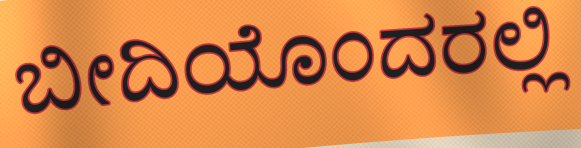
ಬೀದಿಯೊಂದರಲ್ಲಿ